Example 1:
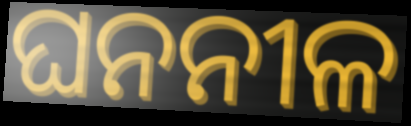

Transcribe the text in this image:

ଘନନୀଳ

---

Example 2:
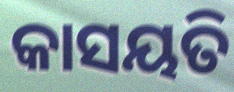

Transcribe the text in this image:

କାସୟତି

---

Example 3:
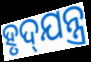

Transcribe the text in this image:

ହୃଦ୍‌ଯନ୍ତ୍ର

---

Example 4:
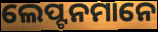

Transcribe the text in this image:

ଲେପ୍ଟନମାନେ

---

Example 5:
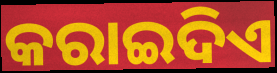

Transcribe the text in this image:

କରାଇଦିଏ